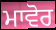
ਮਾਵੋਰ